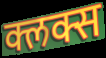
क्लक्स